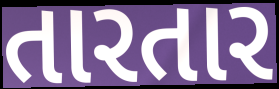
તારતાર